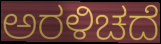
ಅರಳಿಚದೆ